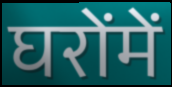
घरोंमें